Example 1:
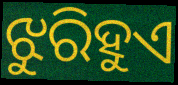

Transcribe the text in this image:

ଝୁରିହୁଏ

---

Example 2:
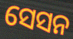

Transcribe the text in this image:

ସେସନ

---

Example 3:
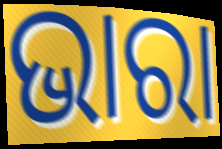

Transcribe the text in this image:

ଭାରା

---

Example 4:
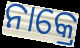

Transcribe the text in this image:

ନାକ୍ରେ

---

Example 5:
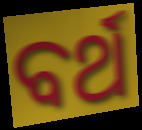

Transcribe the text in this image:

ବର୍ଥ